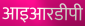
आइआरडीपी